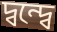
দ্বন্দ্বে